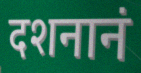
दशनानं